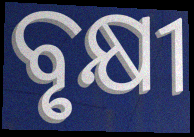
ବୃକ୍ଷୀ